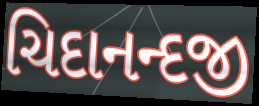
ચિદાનન્દજી